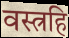
वस्त्रहि